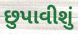
છુપાવીશું